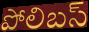
పోలిబస్